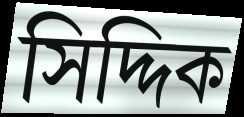
সিদ্দিক